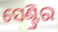
ସେଣ୍ଟ୍ରିର